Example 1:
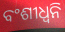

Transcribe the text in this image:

ବଂଶୀଧ୍ବନି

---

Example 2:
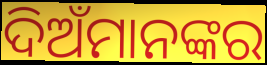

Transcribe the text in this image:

ଦିଅଁମାନଙ୍କର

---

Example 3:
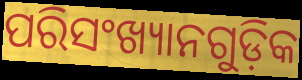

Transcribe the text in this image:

ପରିସଂଖ୍ୟାନଗୁଡ଼ିକ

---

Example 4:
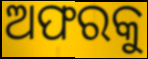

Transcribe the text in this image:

ଅଫରକୁ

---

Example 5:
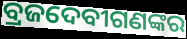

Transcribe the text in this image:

ବ୍ରଜଦେବୀଗଣଙ୍କର